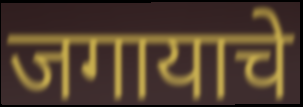
जगायाचे